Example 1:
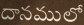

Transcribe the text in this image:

దానములో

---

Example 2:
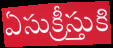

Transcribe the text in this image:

ఏసుక్రీస్తుకి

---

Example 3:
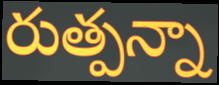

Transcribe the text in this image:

రుత్పన్నా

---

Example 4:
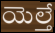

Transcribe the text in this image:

యెల్తే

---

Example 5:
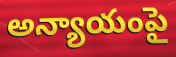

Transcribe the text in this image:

అన్యాయంపై